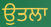
ਉਤਲਾ